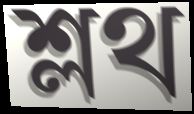
শ্লথ